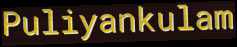
Puliyankulam